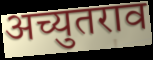
अच्युतराव